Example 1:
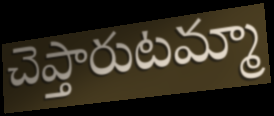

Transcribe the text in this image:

చెప్తారుటమ్మా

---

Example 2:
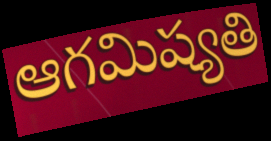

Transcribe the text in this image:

ఆగమిష్యతి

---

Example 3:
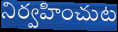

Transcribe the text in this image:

నిర్వహించుట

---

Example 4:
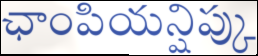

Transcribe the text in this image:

ఛాంపియన్షిప్కు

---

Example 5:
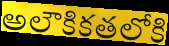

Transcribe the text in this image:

అలౌకికతలోకి